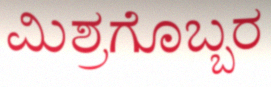
ಮಿಶ್ರಗೊಬ್ಬರ